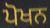
ਪੋਖਨ